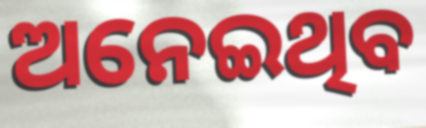
ଅନେଇଥିବ